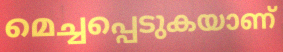
മെച്ചപ്പെടുകയാണ്